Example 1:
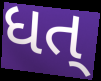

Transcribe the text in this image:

ધત્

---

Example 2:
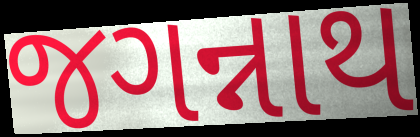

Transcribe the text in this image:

જગન્નાથ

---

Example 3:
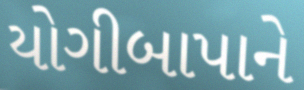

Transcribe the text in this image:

યોગીબાપાને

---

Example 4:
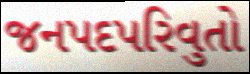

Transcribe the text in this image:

જનપદપરિવુતો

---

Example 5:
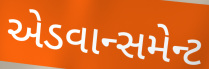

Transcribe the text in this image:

એડવાન્સમેન્ટ